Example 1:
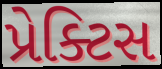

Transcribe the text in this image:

પ્રેક્ટિસ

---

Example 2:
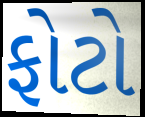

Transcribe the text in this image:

ફોટો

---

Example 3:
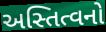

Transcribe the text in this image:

અસ્તિત્વનો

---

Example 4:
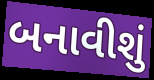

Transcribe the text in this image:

બનાવીશું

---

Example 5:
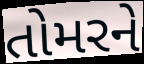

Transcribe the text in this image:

તોમરને